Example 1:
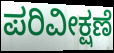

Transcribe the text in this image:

ಪರಿವೀಕ್ಷಣೆ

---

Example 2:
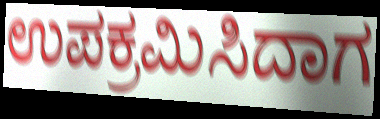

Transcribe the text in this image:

ಉಪಕ್ರಮಿಸಿದಾಗ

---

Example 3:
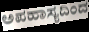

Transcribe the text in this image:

ಅಪಹಾಸ್ಯದಿಂದ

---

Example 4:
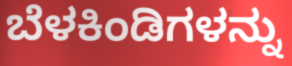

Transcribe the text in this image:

ಬೆಳಕಿಂಡಿಗಳನ್ನು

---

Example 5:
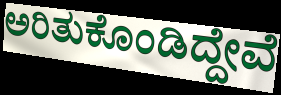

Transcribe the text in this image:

ಅರಿತುಕೊಂಡಿದ್ದೇವೆ